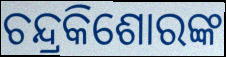
ଚନ୍ଦ୍ରକିଶୋରଙ୍କ